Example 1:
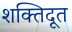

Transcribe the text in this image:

शक्तिदूत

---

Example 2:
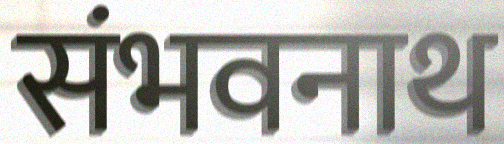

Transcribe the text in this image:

संभवनाथ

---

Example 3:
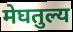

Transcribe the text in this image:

मेघतुल्य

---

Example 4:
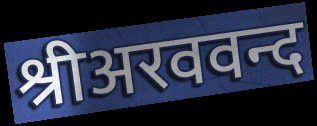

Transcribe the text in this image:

श्रीअरववन्द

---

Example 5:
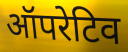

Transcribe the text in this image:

ऑपरेटिव